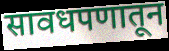
सावधपणातून